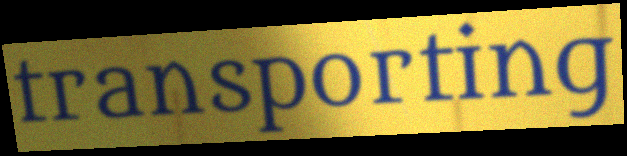
transporting